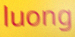
luong